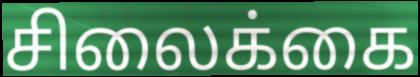
சிலைக்கை